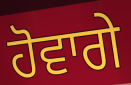
ਹੋਵਾਗੇ